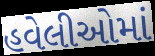
હવેલીઓમાં